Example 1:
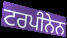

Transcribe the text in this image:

ਟਰਪੀਨੇਨ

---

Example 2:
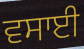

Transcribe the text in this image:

ਵਸਾਈ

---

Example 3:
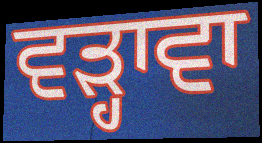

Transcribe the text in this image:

ਵੜ੍ਹਾਵਾ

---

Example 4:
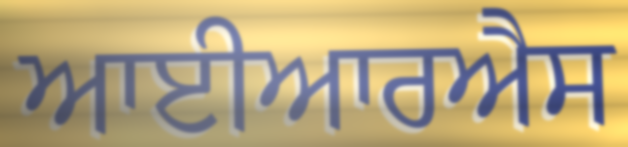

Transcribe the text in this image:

ਆਈਆਰਐਸ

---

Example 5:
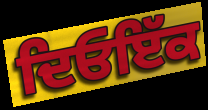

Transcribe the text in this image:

ਦਿਓਇੱਕ